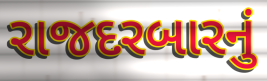
રાજદરબારનું